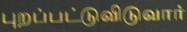
புறப்பட்டுவிடுவார்